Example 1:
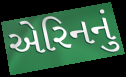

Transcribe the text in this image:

એરિનનું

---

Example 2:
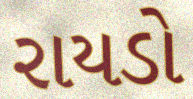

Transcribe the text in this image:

રાયડો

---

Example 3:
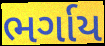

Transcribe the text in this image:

ભર્ગાય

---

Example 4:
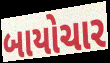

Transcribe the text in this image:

બાયોચાર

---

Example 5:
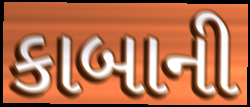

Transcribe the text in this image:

કાબાની